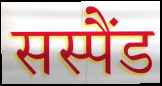
सस्पैंड